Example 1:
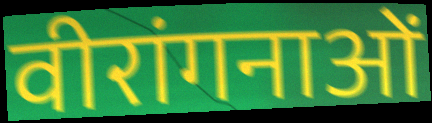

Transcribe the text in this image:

वीरांगनाओं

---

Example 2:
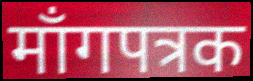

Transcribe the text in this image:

माँगपत्रक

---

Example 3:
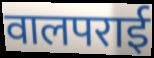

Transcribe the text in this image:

वालपराई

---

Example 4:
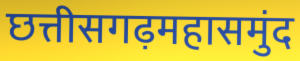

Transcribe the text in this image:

छत्तीसगढ़महासमुंद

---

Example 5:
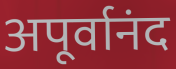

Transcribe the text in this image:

अपूर्वानंद